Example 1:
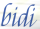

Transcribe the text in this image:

bidi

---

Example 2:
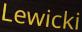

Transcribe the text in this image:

Lewicki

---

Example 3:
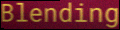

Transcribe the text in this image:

Blending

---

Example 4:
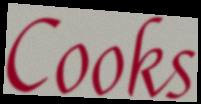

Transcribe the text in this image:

Cooks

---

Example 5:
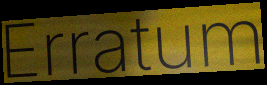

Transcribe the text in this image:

Erratum